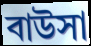
বাউসা